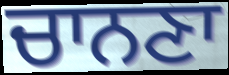
ਚਾਨਣਾ